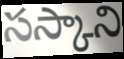
సస్కాని